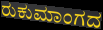
ರುಕುಮಾಂಗದ